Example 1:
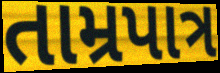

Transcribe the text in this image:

તામ્રપાત્ર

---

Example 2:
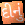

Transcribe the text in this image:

દીનું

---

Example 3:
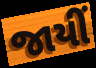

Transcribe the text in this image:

જાયીં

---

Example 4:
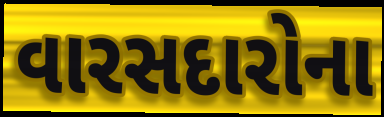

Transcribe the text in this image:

વારસદારોના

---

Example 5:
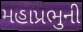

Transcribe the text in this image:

મહાપ્રભુની